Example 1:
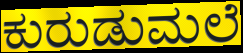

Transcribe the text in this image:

ಕುರುಡುಮಲೆ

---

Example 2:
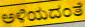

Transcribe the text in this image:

ಅಳಿಯದಂತೆ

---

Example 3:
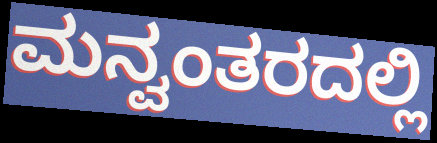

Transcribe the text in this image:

ಮನ್ವಂತರದಲ್ಲಿ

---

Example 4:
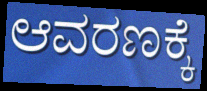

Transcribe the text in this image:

ಆವರಣಕ್ಕೆ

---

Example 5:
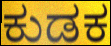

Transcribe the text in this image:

ಕುಡಕ